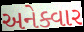
અનેક્વાર